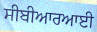
ਸੀਬੀਆਰਆਈ